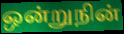
ஒன்றுநின்